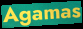
Agamas